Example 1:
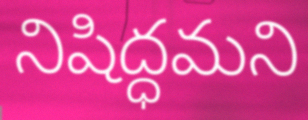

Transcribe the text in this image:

నిషిద్ధమని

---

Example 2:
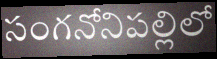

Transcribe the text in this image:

సంగనోనిపల్లిలో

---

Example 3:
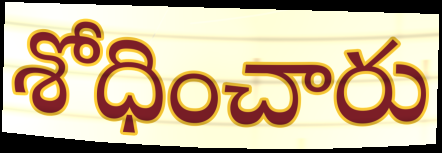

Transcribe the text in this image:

శోధించారు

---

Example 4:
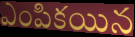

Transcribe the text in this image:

ఎంపికయిన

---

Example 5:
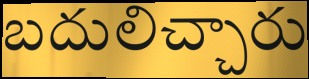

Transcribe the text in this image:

బదులిచ్చారు